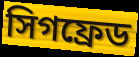
সিগফ্রেড